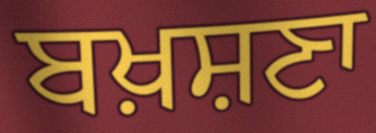
ਬਖ਼ਸ਼ਣਾ